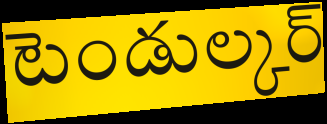
టెండుల్కర్